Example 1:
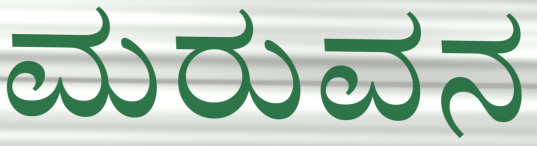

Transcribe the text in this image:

ಮರುವನ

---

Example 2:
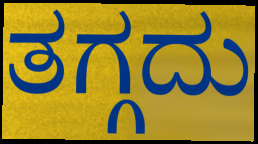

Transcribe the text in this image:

ತಗ್ಗದು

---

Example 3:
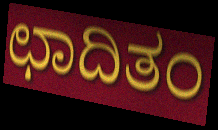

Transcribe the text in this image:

ಛಾದಿತಂ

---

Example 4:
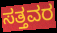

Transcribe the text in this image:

ಸತ್ತವರ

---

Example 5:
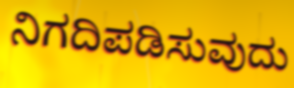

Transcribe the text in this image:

ನಿಗದಿಪಡಿಸುವುದು